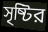
সৃষ্টির